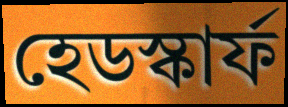
হেডস্কার্ফ